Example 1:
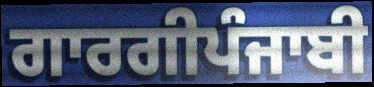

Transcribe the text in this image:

ਗਾਰਗੀਪੰਜਾਬੀ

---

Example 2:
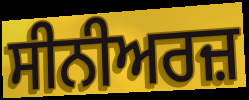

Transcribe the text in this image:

ਸੀਨੀਅਰਜ਼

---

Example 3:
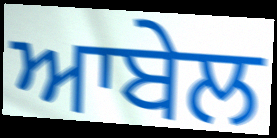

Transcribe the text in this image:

ਆਬੇਲ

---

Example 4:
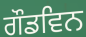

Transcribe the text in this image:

ਗੌਡਵਿਨ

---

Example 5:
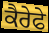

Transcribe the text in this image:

ਕੈਰੇਫੇ